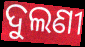
ଦୁଲଣୀ